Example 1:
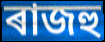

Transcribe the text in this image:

ৰাজহু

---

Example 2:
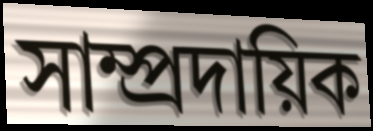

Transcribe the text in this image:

সাম্প্ৰদায়িক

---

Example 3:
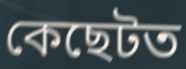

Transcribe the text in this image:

কেছেটত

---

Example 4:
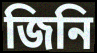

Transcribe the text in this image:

জিনি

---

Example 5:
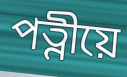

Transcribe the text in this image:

পত্নীয়ে